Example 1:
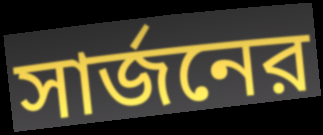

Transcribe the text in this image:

সার্জনের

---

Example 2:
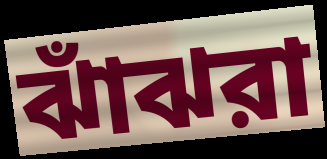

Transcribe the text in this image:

ঝাঁঝরা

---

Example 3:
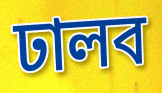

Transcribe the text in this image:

ঢালব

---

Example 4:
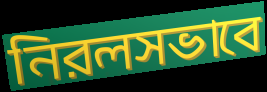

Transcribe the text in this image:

নিরলসভাবে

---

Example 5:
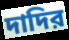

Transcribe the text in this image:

দাদির